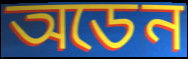
অডেন